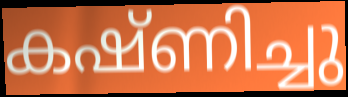
കഷ്ണിച്ചു